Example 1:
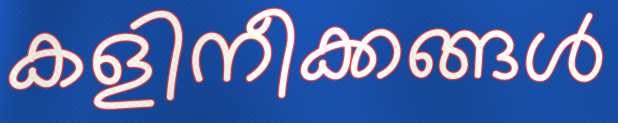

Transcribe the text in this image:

കളിനീക്കങ്ങൾ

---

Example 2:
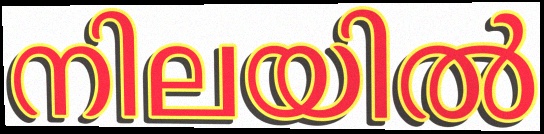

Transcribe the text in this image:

നിലയിൽ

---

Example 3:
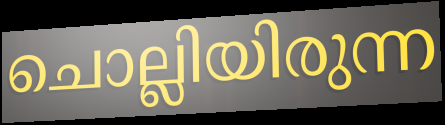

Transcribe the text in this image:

ചൊല്ലിയിരുന്ന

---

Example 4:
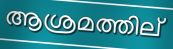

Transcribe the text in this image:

ആശ്രമത്തില്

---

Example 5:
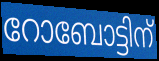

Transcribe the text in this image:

റോബോട്ടിന്